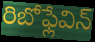
రిబోఫ్లేవిన్